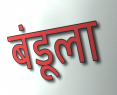
बंडूला